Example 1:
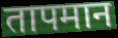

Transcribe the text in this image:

तापमान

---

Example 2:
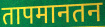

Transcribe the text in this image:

तापमानतन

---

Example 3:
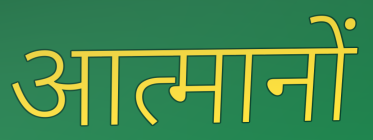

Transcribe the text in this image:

आत्मानों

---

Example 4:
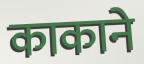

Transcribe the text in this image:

काकाने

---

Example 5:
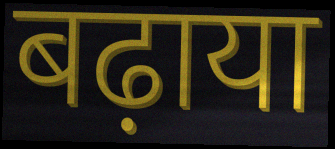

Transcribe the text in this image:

बढ़ाया